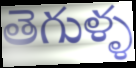
తెగుళ్ళ